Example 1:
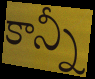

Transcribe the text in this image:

కాన్నీ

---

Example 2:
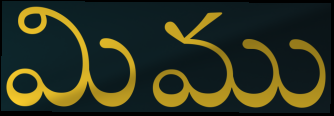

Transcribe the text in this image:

మిము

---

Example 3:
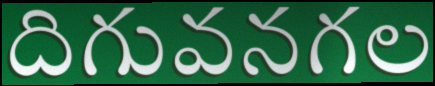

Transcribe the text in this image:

దిగువనగల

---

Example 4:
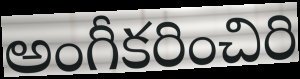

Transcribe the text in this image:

అంగీకరించిరి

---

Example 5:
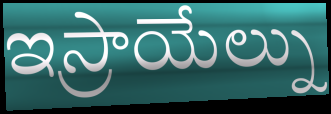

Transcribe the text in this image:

ఇస్రాయేల్ను